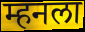
म्हनला